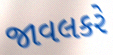
જાવલકરે